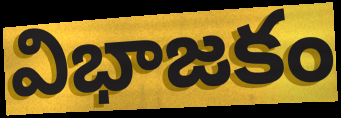
విభాజకం